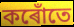
কৰোঁতে